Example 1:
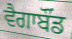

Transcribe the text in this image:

ਵੈਗਾਬੌਂਡ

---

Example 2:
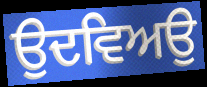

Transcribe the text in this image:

ਉਦਵਿਅਉ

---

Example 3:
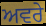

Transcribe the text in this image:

ਅਵਰੇ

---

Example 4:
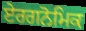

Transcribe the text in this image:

ਏਰਗਨੋਮਿਕ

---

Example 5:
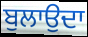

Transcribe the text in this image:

ਬੁਲਾਉਦਾ